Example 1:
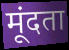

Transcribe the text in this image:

मूंदता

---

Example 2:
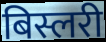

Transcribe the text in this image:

बिस्लरी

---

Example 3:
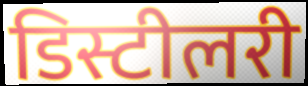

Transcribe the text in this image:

डिस्टीलरी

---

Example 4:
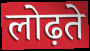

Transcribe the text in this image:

लोढ़ते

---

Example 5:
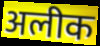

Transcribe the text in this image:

अलीक